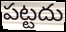
పట్టదు